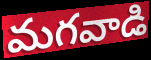
మగవాడి